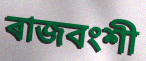
ৰাজবংশী